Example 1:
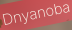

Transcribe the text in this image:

Dnyanoba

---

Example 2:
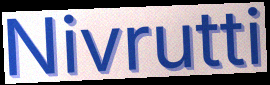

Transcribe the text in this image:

Nivrutti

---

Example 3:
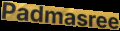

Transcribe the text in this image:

Padmasree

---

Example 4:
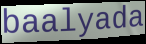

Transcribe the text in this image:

baalyada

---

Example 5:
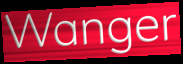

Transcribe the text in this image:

Wanger